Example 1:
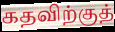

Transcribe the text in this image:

கதவிற்குத்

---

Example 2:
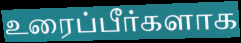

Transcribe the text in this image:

உரைப்பீர்களாக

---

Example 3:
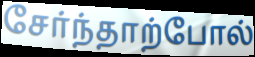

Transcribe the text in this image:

சேர்ந்தாற்போல்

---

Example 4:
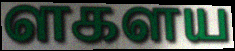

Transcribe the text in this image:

ளகளய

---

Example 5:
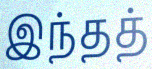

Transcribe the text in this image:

இந்தத்